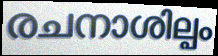
രചനാശില്പം